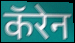
कॅरेन